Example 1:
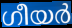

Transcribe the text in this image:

ഗീയർ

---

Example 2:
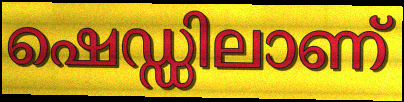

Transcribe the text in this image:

ഷെഡ്ഡിലാണ്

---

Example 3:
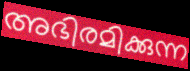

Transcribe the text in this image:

അഭിരമിക്കുന്ന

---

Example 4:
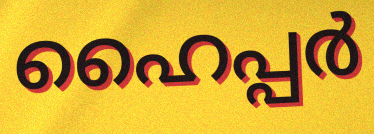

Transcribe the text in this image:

ഹൈപ്പർ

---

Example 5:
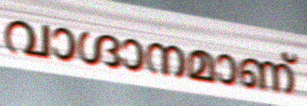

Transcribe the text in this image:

വാഗ്ദാനമാണ്